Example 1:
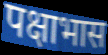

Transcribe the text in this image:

पक्षाभास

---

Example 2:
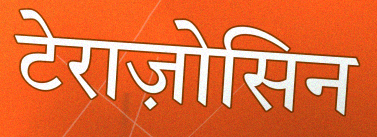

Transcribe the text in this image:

टेराज़ोसिन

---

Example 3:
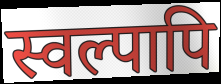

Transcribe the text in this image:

स्वल्पापि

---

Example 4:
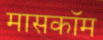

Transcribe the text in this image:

मासकॉम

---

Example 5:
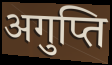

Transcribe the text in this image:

अगुप्ति